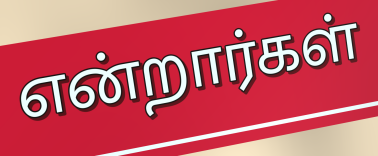
என்றார்கள்